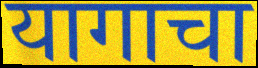
यागाचा